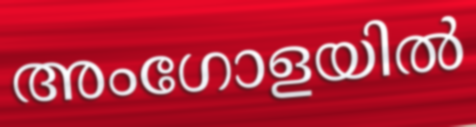
അംഗോളയിൽ